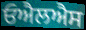
ਓਐਲਐਸ